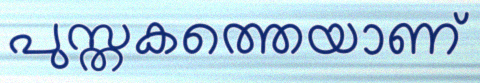
പുസ്തകത്തെയാണ്